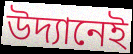
উদ্যানেই